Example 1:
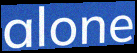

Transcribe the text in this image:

alone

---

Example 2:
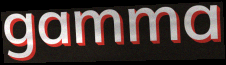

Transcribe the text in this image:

gamma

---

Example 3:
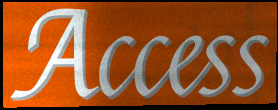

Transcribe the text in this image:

Access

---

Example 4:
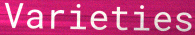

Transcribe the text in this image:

Varieties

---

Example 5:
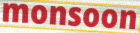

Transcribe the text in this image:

monsoon